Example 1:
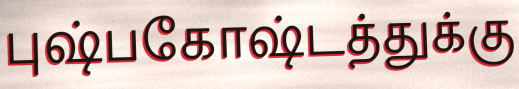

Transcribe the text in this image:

புஷ்பகோஷ்டத்துக்கு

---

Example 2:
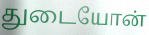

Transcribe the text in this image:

துடையோன்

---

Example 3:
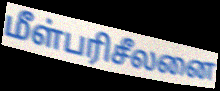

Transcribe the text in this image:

மீள்பரிசீலனை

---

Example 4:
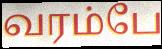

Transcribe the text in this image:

வரம்பே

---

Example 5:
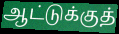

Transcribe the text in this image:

ஆட்டுக்குத்